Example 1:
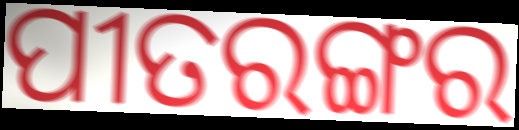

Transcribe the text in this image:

ପୀତରଙ୍ଗର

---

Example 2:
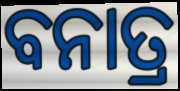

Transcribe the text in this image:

ବନାତ୍ର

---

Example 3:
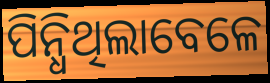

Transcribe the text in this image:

ପିନ୍ଧିଥିଲାବେଳେ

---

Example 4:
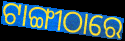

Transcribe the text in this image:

ଟାଙ୍ଗୀଠାରେ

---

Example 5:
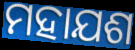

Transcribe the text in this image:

ମହାଯଶ